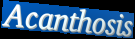
Acanthosis